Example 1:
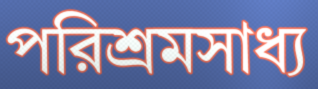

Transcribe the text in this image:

পরিশ্রমসাধ্য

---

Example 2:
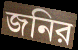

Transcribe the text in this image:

জনির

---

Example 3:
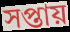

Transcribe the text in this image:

সপ্তায়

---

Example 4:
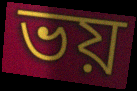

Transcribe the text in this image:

ভয়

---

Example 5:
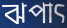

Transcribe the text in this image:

ঝপাৎ